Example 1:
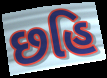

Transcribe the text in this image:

છહિ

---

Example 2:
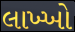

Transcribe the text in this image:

લાખ્ખો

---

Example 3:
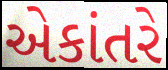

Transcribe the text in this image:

એકાંતરે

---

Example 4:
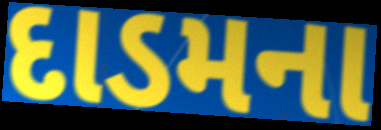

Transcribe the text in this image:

દાડમના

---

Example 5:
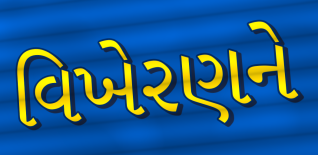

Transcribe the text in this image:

વિખેરણને